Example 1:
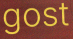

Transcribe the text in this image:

gost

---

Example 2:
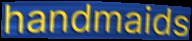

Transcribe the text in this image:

handmaids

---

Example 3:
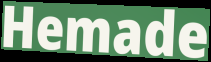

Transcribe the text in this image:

Hemade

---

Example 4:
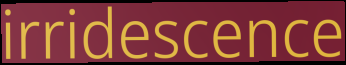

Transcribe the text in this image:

irridescence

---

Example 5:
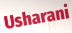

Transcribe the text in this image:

Usharani